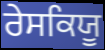
ਰੇਸਕਿਯੂ